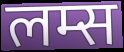
लम्स